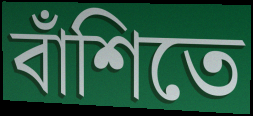
বাঁশিতে